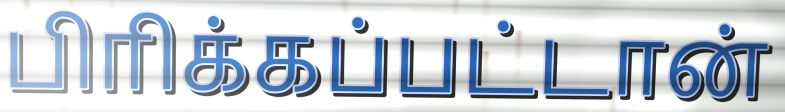
பிரிக்கப்பட்டான்